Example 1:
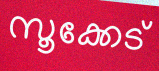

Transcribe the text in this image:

സൂക്കേട്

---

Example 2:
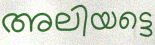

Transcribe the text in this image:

അലിയട്ടെ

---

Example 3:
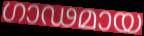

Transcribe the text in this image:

ഗാഢമായ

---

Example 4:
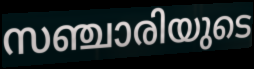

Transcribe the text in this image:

സഞ്ചാരിയുടെ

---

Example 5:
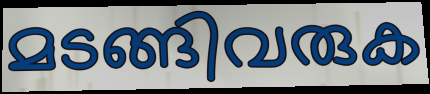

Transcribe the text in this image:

മടങ്ങിവരുക